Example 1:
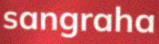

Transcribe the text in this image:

sangraha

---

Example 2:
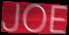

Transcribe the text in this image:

JOE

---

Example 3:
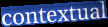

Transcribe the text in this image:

contextual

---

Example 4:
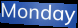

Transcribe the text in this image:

Monday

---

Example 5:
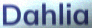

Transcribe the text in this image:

Dahlia